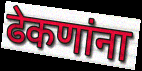
ढेकणांना